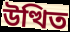
উত্থিত